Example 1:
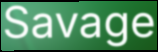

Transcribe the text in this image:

Savage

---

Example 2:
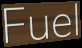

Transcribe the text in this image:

Fuel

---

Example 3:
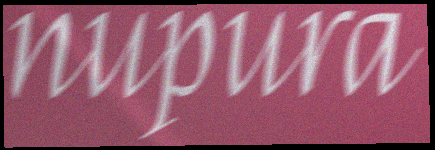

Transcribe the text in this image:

nupura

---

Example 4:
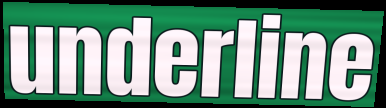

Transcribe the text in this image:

underline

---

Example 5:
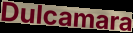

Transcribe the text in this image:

Dulcamara